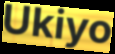
Ukiyo